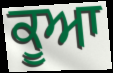
ਕੂਆ